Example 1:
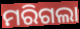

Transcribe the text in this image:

ମରିଗଲା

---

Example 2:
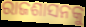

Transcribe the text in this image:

ରାଜଶାସନକୁ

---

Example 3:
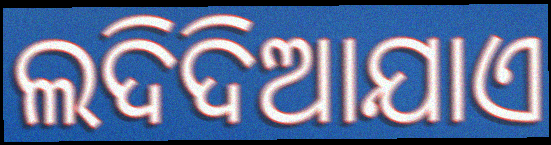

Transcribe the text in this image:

ଲଦିଦିଆଯାଏ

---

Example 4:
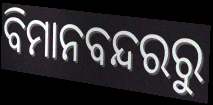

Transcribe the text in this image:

ବିମାନବନ୍ଦରରୁ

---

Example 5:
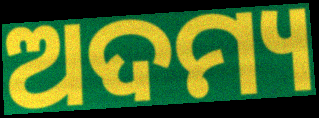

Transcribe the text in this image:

ଅଦମ୍ୟ